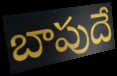
బాపుదే